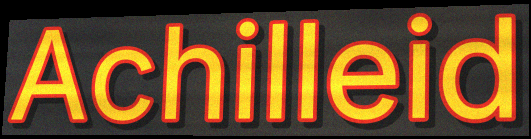
Achilleid